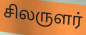
சிலருளர்